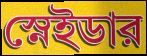
স্নেইডার